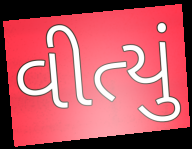
વીત્યું